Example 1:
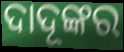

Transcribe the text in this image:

ଦାଦୂଙ୍କର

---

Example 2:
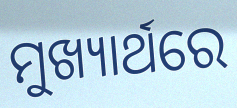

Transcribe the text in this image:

ମୁଖ୍ୟାର୍ଥରେ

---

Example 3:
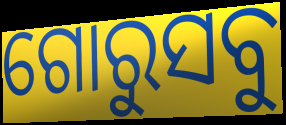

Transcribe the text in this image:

ଗୋରୁସବୁ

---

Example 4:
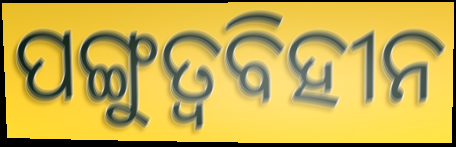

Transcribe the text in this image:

ପଙ୍ଗୁତ୍ୱବିହୀନ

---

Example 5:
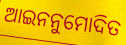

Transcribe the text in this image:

ଆଇନନୁମୋଦିତ